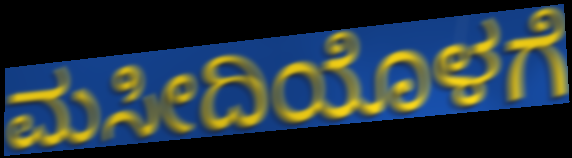
ಮಸೀದಿಯೊಳಗೆ